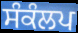
ਸੰਕੰਲਪ